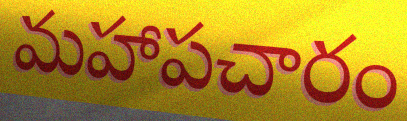
మహాపచారం